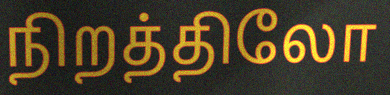
நிறத்திலோ